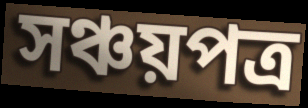
সঞ্চয়পত্র